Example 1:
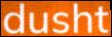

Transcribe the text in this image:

dusht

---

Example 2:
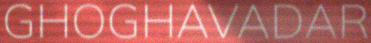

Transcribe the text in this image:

GHOGHAVADAR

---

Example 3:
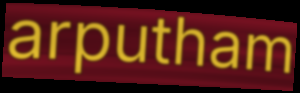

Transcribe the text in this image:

arputham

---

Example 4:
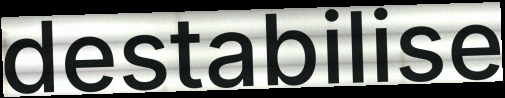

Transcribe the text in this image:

destabilise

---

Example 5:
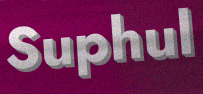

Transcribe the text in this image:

Suphul